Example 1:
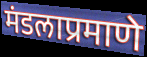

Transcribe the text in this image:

मंडलाप्रमाणे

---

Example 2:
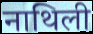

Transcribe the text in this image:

नाथिली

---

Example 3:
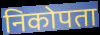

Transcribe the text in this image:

निकोपता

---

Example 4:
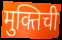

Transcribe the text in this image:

मुक्तिची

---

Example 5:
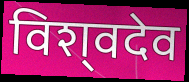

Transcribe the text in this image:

विश्वदेव